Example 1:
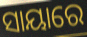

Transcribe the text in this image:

ସାୟାରେ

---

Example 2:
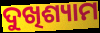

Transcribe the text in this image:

ଦୁଖିଶ୍ୟାମ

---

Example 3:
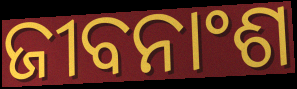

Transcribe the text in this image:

ଜୀବନାଂଶ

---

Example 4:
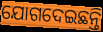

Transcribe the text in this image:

ଯୋଗଦେଇଛନ୍ତି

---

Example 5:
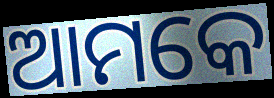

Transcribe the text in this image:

ଆମକେ